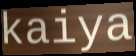
kaiya